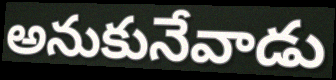
అనుకునేవాడు